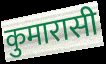
कुमारासी